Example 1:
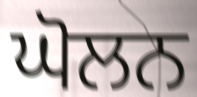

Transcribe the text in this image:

ਘੋਲਨ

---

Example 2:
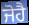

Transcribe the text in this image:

ਜੋਹੈ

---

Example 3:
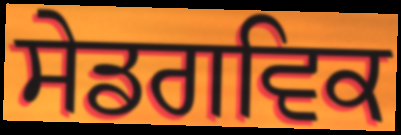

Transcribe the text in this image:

ਸੇਡਗਵਿਕ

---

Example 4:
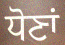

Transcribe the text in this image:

ਧੋਣਾਂ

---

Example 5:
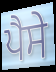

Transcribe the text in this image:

ਪੈਸੇ